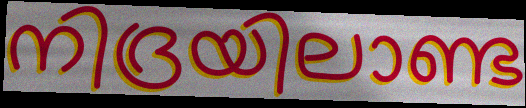
നിദ്രയിലാണ്ട